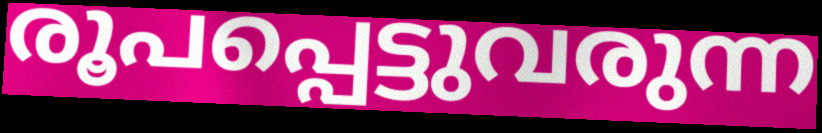
രൂപപ്പെട്ടുവരുന്ന